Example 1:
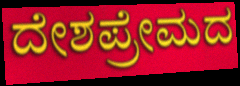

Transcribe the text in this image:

ದೇಶಪ್ರೇಮದ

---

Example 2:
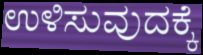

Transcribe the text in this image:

ಉಳಿಸುವುದಕ್ಕೆ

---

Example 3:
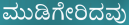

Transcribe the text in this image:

ಮುಡಿಗೇರಿದವು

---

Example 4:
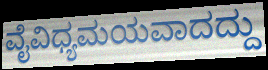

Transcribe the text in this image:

ವೈವಿಧ್ಯಮಯವಾದದ್ದು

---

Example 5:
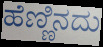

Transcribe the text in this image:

ಹೆಣ್ಣಿನದು